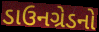
ડાઉનગ્રેડનો